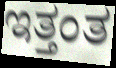
ಇತ್ತಂತ